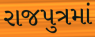
રાજપુત્રમાં